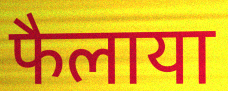
फैलाया